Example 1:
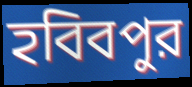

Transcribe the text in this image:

হবিবপুর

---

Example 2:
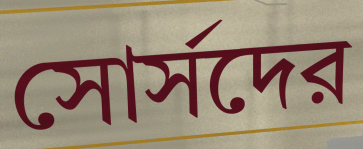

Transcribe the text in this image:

সোর্সদের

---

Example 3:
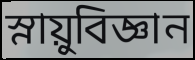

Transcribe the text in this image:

স্নায়ুবিজ্ঞান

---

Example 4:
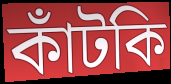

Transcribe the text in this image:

কাঁটকি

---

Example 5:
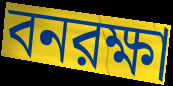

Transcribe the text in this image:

বনরক্ষা